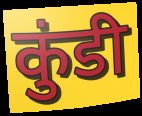
कुंडी